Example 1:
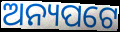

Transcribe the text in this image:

ଅନ୍ୟପଟେ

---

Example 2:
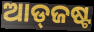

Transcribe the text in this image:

ଆଡ୍‌ଜଷ୍ଟ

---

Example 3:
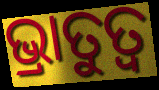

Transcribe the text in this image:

ଭ୍ରାତୁତ୍ଵ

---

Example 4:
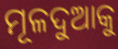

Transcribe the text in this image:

ମୂଳଦୁଆକୁ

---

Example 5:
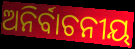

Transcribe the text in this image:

ଅନିର୍ବାଚନୀୟ